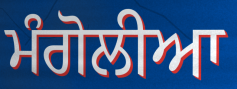
ਮੰਗੋਲੀਆ